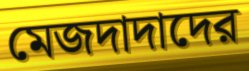
মেজদাদাদের